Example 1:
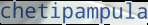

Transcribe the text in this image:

chetipampula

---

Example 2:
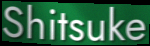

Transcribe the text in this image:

Shitsuke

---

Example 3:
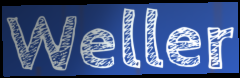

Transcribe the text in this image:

Weller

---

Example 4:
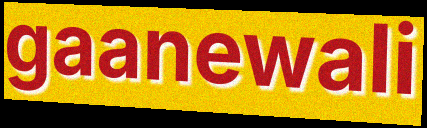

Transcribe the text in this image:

gaanewali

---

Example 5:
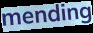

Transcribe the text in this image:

mending